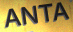
ANTA